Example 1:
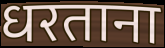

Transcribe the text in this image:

धरताना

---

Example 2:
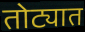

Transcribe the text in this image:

तोट्यात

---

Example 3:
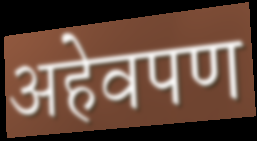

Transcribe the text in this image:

अहेवपण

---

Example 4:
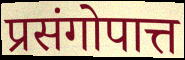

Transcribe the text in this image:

प्रसंगोपात्त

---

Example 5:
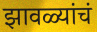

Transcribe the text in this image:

झावळ्यांचं